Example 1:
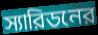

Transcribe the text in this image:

স্যারিডনের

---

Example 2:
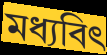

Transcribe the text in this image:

মধ্যবিৎ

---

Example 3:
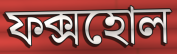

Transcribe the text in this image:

ফক্সহোল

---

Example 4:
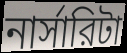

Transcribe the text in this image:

নার্সারিটা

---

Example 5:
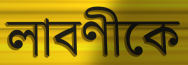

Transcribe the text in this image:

লাবণীকে